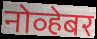
नोव्हेबर